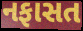
નફાસત